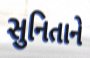
સુનિતાને